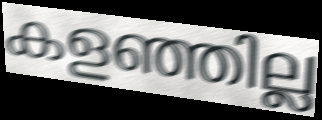
കളഞ്ഞില്ല